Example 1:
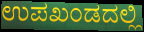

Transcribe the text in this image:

ಉಪಖಂಡದಲ್ಲಿ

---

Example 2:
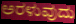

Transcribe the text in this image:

ಅರಳುವುದು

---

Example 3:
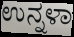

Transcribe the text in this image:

ಉನ್ನಳಾ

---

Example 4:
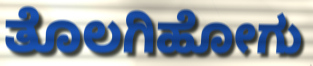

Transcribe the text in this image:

ತೊಲಗಿಹೋಗು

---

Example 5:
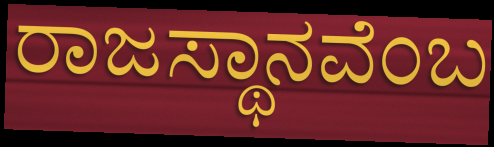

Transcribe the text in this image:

ರಾಜಸ್ಥಾನವೆಂಬ